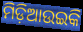
ମିଡ଼ିଆଉଇକି